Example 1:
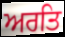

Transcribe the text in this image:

ਅਰਤਿ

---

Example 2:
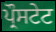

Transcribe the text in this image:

ਪ੍ਰੌਸਟੇਟ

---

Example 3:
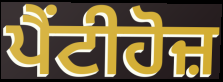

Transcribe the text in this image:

ਪੈਂਟੀਹੋਜ਼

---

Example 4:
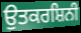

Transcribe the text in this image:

ਉਤਕਰਸ਼ਿਨੀ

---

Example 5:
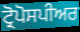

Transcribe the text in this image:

ਟ੍ਰੋਪੋਸਪੀਅਰ